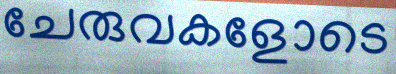
ചേരുവകളോടെ